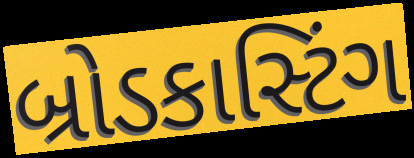
બ્રોડકાસ્ટિંગ